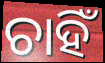
ଚାହିଁ